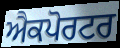
ਐਕਪੋਰਟਰ